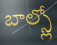
బాల్స్లో